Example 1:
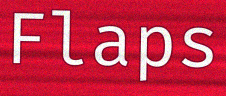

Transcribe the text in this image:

Flaps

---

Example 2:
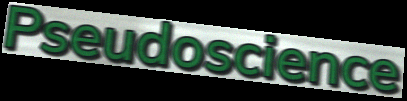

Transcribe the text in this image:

Pseudoscience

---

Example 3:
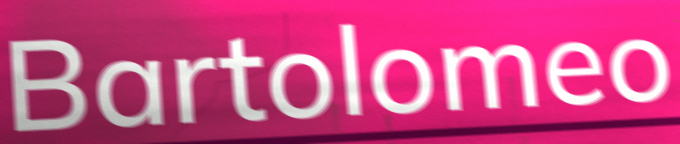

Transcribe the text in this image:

Bartolomeo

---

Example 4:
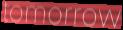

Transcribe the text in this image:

tomorrow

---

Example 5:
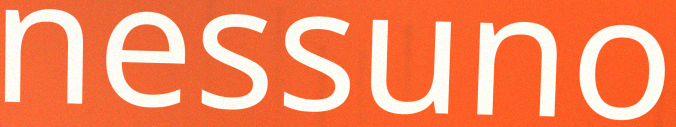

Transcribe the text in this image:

nessuno